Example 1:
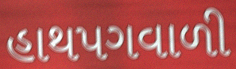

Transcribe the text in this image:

હાથપગવાળી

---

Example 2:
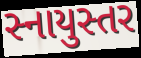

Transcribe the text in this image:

સ્નાયુસ્તર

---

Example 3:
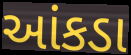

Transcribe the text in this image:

આંકડા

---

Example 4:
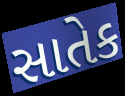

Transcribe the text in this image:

સાતેક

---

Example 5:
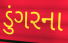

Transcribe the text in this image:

ડુંગરના